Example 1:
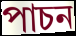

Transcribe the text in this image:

পাচন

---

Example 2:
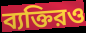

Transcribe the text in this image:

ব্যক্তিরও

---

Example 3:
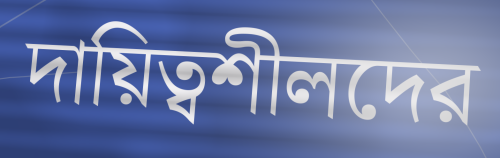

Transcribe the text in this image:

দায়িত্বশীলদের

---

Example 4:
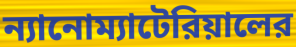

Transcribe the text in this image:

ন্যানোম্যাটেরিয়ালের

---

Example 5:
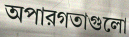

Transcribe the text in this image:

অপারগতাগুলো